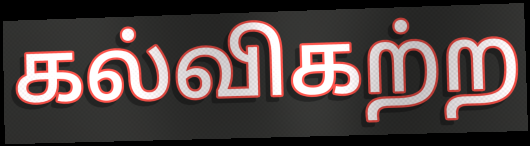
கல்விகற்ற